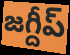
జగ్దీప్